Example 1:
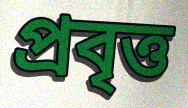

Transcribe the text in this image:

প্ৰবৃত্ত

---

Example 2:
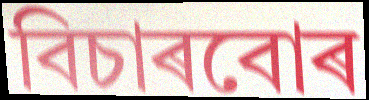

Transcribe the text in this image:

বিচাৰবোৰ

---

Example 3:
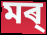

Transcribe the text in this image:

মৰ্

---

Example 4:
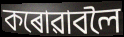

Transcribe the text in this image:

কৰোৱাবলৈ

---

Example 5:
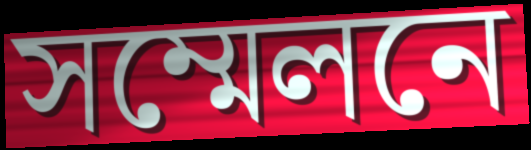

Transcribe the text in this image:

সম্মেলনে